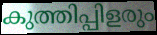
കുത്തിപ്പിളരും